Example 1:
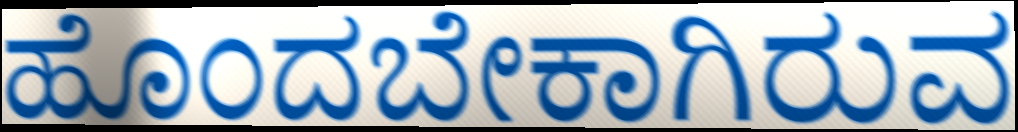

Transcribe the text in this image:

ಹೊಂದಬೇಕಾಗಿರುವ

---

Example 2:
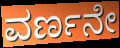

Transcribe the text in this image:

ವರ್ಣನೇ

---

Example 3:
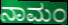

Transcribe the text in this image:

ನಾಮಂ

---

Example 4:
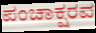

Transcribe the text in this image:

ಪಂಚಾಕ್ಷರವ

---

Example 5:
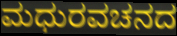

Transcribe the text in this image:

ಮಧುರವಚನದ